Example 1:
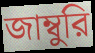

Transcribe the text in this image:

জাম্বুরি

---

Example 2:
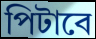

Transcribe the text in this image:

পিটাবে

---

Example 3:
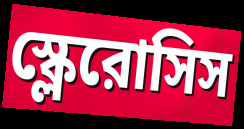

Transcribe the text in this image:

স্ক্লেরোসিস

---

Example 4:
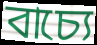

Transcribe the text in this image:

বাচ্যে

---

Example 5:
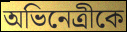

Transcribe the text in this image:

অভিনেত্রীকে